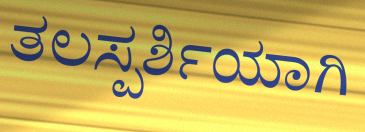
ತಲಸ್ಪರ್ಶಿಯಾಗಿ